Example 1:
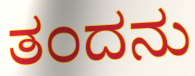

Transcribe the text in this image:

ತಂದನು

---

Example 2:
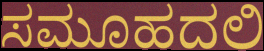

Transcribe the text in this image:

ಸಮೂಹದಲಿ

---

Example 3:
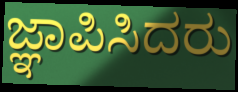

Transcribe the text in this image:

ಜ್ಞಾಪಿಸಿದರು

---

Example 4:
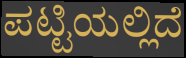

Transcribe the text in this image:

ಪಟ್ಟಿಯಲ್ಲಿದೆ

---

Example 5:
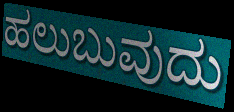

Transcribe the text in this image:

ಹಲುಬುವುದು